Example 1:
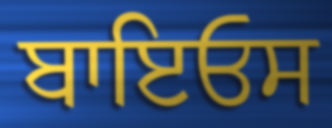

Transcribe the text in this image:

ਬਾਇਓਸ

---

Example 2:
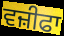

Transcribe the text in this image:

ਵਜ਼ੀਫਾ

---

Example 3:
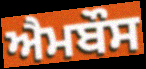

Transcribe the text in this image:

ਐਮਬੌਸ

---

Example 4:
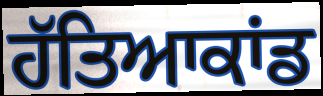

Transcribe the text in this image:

ਹੱਤਿਆਕਾਂਡ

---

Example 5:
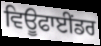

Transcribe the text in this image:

ਵਿਊਫਾਈਂਡਰ